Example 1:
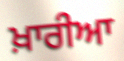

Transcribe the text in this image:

ਖ਼ਾਰੀਆ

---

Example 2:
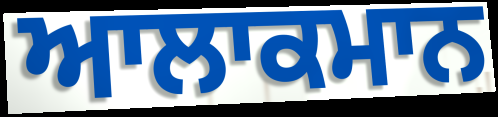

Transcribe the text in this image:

ਆਲਾਕਮਾਨ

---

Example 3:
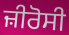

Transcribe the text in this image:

ਜ਼ੀਰੋਸੀ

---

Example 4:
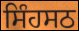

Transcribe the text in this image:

ਸਿੰਹਸਠ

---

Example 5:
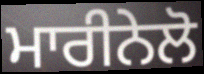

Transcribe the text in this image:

ਮਾਰੀਨੇਲੋ